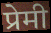
प्रेमी